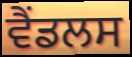
ਵੈਂਡਲਸ